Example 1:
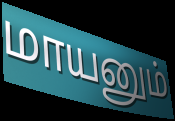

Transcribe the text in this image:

மாயனும்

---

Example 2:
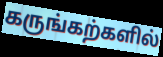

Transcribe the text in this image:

கருங்கற்களில்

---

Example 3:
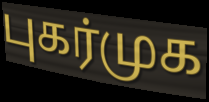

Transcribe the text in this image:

புகர்முக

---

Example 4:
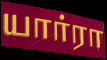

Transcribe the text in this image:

யார்ரா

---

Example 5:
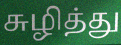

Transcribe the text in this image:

சுழித்து